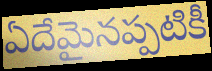
ఏదేమైనప్పటికీ